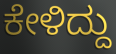
ಕೇಳಿದ್ದು